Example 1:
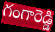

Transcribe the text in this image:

గంగారెడ్డి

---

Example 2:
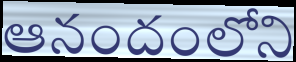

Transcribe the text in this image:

ఆనందంలోని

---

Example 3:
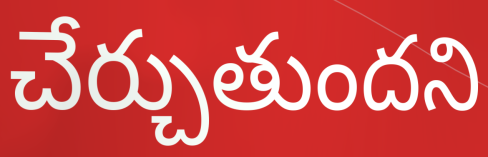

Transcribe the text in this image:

చేర్చుతుందని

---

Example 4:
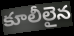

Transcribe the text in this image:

కూలీలైన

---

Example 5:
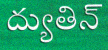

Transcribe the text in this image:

ద్యుతిన్